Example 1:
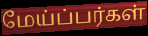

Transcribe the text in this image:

மேய்ப்பர்கள்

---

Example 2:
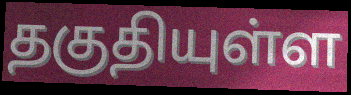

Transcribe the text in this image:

தகுதியுள்ள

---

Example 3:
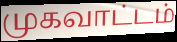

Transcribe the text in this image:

முகவாட்டம்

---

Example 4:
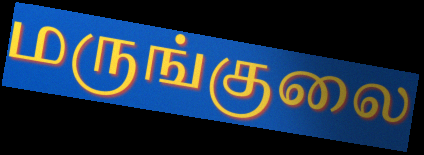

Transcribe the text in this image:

மருங்குலை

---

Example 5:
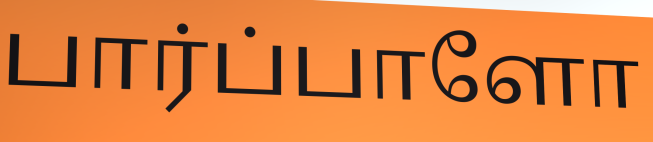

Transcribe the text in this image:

பார்ப்பாளோ